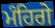
ਮੰਹਿਗੇ